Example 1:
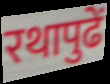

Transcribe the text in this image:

रथापुढें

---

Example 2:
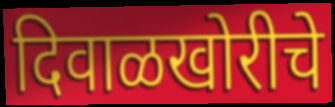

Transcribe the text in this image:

दिवाळखोरीचे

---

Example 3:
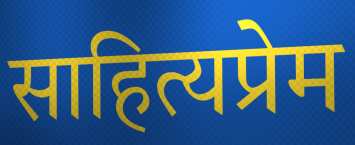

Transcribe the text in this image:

साहित्यप्रेम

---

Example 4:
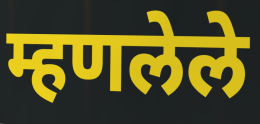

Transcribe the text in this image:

म्हणलेले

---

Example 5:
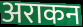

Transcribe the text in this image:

अराकन